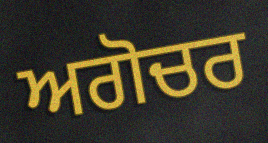
ਅਗੋਚਰ